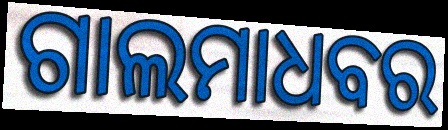
ଗାଲମାଧବର